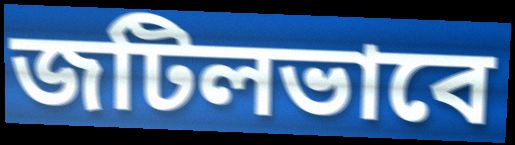
জটিলভাবে